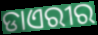
ଡାଏରୀର